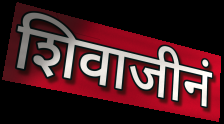
शिवाजीनं